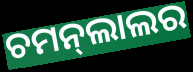
ଚମନ୍‍ଲାଲର